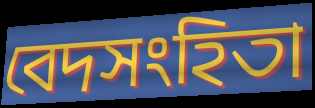
বেদসংহিতা